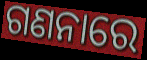
ଗଣନାରେ